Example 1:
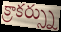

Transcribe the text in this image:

క్రాకర్స్ను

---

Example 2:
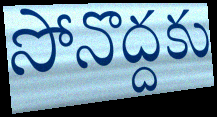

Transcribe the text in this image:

సోనొద్దకు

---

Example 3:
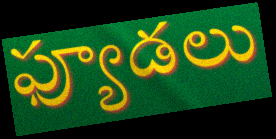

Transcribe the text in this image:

ఫ్యూడలు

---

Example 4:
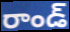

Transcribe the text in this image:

రాండ్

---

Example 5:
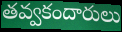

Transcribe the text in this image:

తవ్వకందారులు